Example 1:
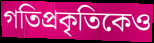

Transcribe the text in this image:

গতিপ্রকৃতিকেও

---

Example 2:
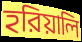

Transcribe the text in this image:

হরিয়ালি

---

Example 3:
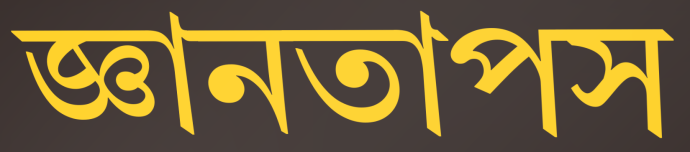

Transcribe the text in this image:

জ্ঞানতাপস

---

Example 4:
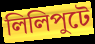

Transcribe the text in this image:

লিলিপুটে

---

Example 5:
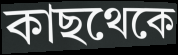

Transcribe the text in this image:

কাছথেকে